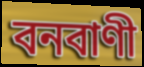
বনবাণী